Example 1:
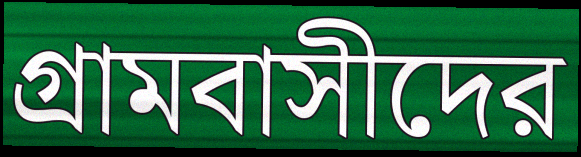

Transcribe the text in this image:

গ্রামবাসীদের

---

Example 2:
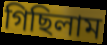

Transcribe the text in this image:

গিছিলাম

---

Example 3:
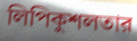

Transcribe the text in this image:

লিপিকুশলতার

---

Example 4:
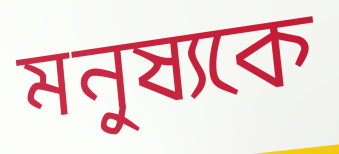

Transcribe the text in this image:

মনুষ্যকে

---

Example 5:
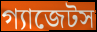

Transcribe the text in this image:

গ্যাজেটস